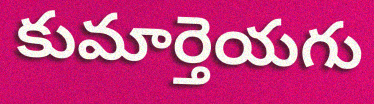
కుమార్తెయగు